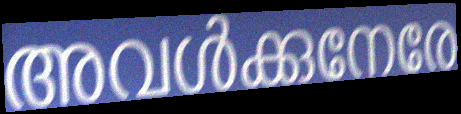
അവൾക്കുനേരേ